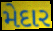
મેદાર